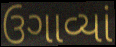
ઉગાવ્યાં